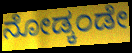
ನೋಡ್ಕಂಡೇ